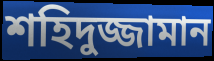
শহিদুজ্জামান